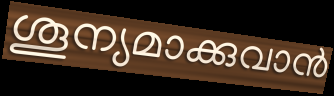
ശൂന്യമാക്കുവാൻ